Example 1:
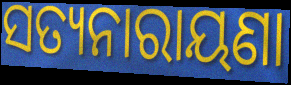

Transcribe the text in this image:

ସତ୍ୟନାରାୟଣା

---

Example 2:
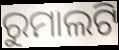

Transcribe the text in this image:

ରୁମାଲଟି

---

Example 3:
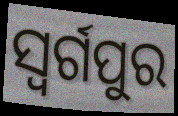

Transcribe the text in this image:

ସ୍ଵର୍ଗପୁର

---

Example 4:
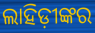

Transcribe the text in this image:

ଲାହିଡ଼ୀଙ୍କର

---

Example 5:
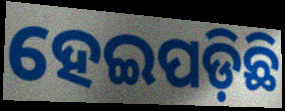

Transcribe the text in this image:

ହେଇପଡ଼ିଛି